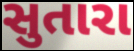
સુતારા